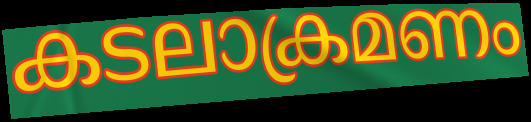
കടലാക്രമണം